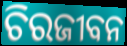
ଚିରଜୀବନ